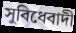
সুবিধেবাদী